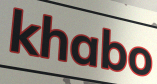
khabo